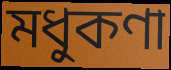
মধুকণা